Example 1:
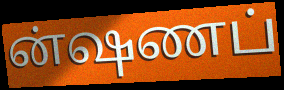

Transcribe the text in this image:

ன்ஷணப்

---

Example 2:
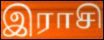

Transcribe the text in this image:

இராசி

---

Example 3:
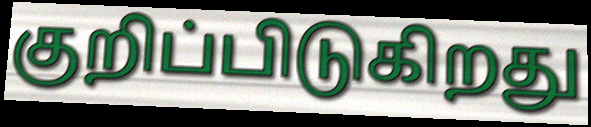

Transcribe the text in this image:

குறிப்பிடுகிறது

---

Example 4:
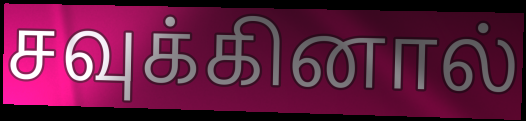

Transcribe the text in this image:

சவுக்கினால்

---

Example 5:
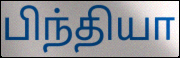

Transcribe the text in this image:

பிந்தியா